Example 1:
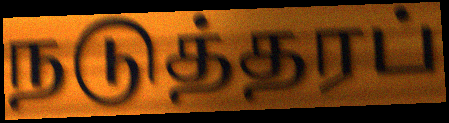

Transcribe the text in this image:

நடுத்தரப்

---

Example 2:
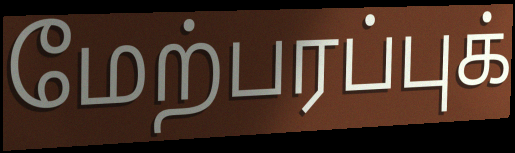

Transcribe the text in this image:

மேற்பரப்புக்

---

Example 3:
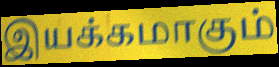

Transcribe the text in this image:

இயக்கமாகும்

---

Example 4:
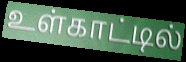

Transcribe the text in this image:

உள்காட்டில்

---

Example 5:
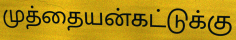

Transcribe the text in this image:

முத்தையன்கட்டுக்கு